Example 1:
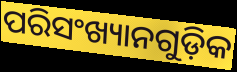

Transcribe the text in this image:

ପରିସଂଖ୍ୟାନଗୁଡ଼ିକ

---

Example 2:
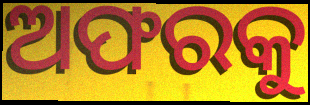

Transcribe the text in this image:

ଅଫରକୁ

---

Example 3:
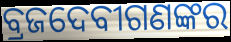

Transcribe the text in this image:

ବ୍ରଜଦେବୀଗଣଙ୍କର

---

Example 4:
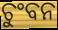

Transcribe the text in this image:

ଚୁଂବନ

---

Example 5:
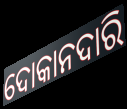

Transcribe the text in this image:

ଦୋକାନଦାରି